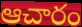
ఆచారం